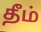
தீம்